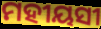
ମହୀୟସୀ